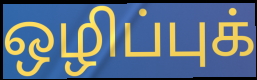
ஒழிப்புக்